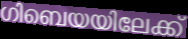
ഗിബെയയിലേക്ക്